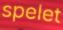
spelet